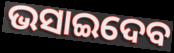
ଭସାଇଦେବ